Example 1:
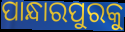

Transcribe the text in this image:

ପାନ୍ଧାରପୁରକୁ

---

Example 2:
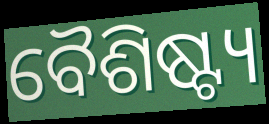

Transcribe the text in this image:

ବୈଶିଷ୍ଟ୍ୟ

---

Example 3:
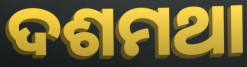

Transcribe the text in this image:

ଦଶମଥା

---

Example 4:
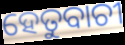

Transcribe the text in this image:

ହେତୁବାଚୀ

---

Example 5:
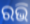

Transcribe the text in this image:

ରଭି